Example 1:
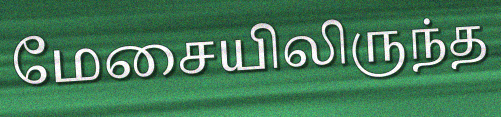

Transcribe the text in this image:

மேசையிலிருந்த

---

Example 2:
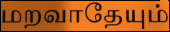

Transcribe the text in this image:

மறவாதேயும்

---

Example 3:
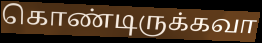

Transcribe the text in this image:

கொண்டிருக்கவா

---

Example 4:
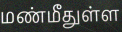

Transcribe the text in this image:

மண்மீதுள்ள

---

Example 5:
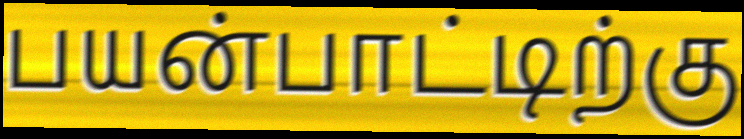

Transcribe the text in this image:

பயன்பாட்டிற்கு